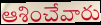
ఆశించేవారు